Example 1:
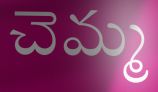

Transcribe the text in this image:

చెమ్మ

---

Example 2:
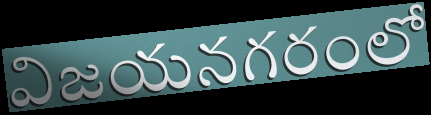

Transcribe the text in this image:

విజయనగరంలో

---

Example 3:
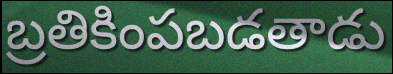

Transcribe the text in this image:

బ్రతికింపబడతాడు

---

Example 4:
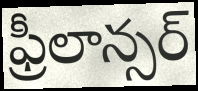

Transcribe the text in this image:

ఫ్రీలాన్సర్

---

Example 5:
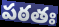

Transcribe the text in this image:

పఠతః